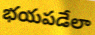
భయపడేలా